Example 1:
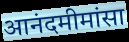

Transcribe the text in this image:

आनंदमीमांसा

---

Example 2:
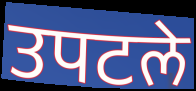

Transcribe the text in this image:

उपटले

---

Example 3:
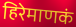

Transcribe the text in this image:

हिरेमाणकं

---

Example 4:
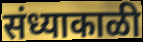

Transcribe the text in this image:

संध्याकाळी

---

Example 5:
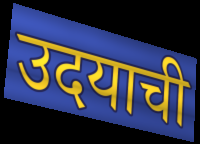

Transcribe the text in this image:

उदयाची